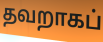
தவறாகப்